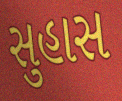
સુહાસ